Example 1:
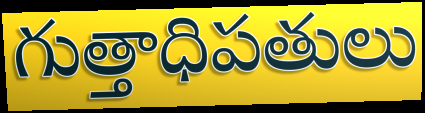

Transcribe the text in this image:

గుత్తాధిపతులు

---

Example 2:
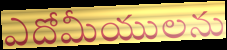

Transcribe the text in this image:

ఎదోమీయులను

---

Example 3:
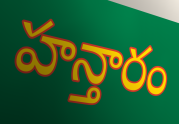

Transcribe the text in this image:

హన్తారం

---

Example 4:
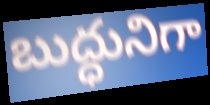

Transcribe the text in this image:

బుద్ధునిగా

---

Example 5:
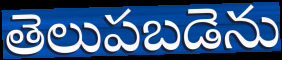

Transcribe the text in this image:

తెలుపబడెను